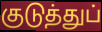
குடுத்துப்